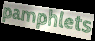
pamphlets